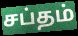
சப்தம்